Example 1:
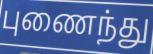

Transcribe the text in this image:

புணைந்து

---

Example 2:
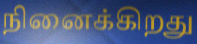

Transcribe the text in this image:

நினைக்கிறது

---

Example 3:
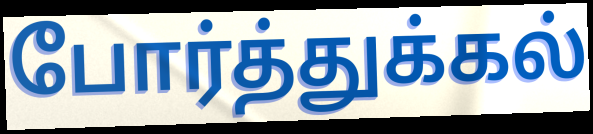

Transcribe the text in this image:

போர்த்துக்கல்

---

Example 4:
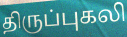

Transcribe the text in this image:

திருப்புகலி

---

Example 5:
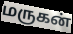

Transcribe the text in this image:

மருகன்